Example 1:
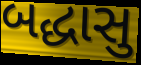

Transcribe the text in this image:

બદ્ધાસુ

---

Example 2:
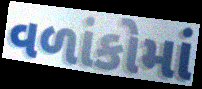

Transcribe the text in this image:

વળાંકોમાં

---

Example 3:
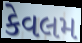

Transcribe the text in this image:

કેવલમ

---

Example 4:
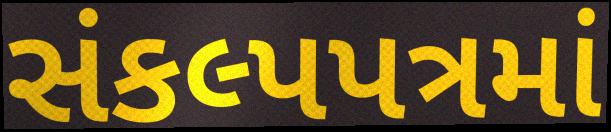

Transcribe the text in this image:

સંકલ્પપત્રમાં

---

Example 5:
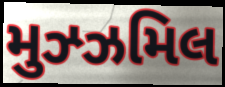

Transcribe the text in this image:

મુઝ્ઝમિલ